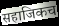
सहाजिकच